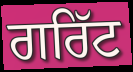
ਗਰਿੱਟ